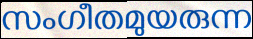
സംഗീതമുയരുന്ന